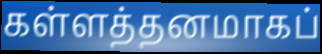
கள்ளத்தனமாகப்